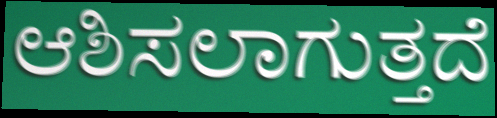
ಆಶಿಸಲಾಗುತ್ತದೆ